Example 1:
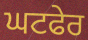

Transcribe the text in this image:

ਘਟਫੇਰ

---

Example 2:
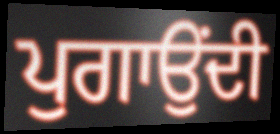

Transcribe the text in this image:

ਪੁਗਾਉਂਦੀ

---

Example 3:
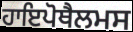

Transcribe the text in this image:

ਹਾਇਪੋਥੈਲਮਸ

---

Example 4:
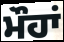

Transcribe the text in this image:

ਮੌਹਾਂ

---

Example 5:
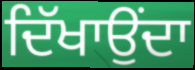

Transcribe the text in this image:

ਦਿੱਖਾਉਂਦਾ